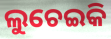
ଲୁଚେଇକି